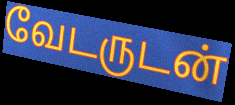
வேடருடன்